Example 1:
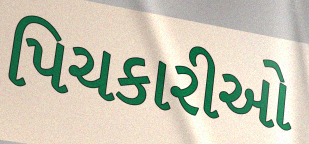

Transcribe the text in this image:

પિચકારીઓ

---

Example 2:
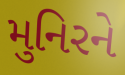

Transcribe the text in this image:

મુનિરને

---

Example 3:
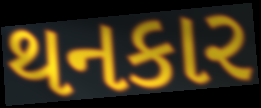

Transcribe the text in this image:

થનકાર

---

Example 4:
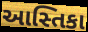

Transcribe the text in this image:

આસ્તિકા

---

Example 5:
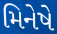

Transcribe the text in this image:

મિનેષે